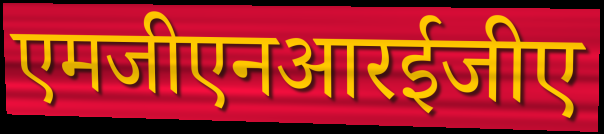
एमजीएनआरईजीए